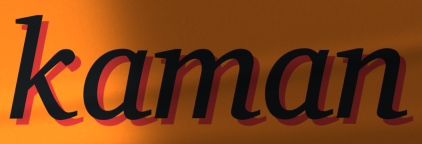
kaman